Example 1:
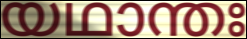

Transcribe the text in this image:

യഥാന്തഃ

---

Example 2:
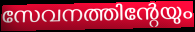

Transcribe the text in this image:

സേവനത്തിന്റേയും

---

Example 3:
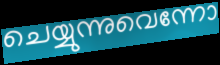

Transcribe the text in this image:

ചെയ്യുന്നുവെന്നോ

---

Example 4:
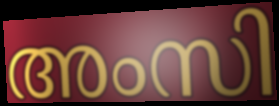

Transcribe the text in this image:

അംസി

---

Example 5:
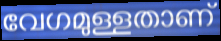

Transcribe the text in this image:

വേഗമുള്ളതാണ്